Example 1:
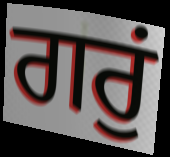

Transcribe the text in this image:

ਗਰੁਂ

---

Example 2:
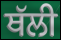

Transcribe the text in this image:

ਥੱਲੀ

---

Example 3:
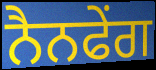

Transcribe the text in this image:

ਨੈਨਫੇਂਗ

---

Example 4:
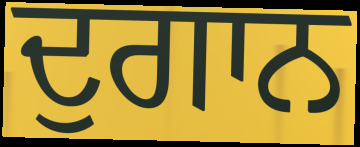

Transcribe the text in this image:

ਦੁਗਾਨ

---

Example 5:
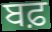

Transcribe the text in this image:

ਬਫ਼